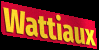
Wattiaux